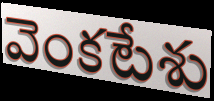
వెంకటేశు